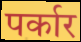
पर्कार